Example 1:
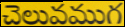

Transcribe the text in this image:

చెలువముగ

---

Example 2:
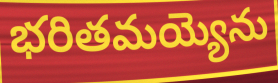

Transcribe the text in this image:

భరితమయ్యెను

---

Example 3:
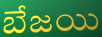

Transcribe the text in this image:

బేజయి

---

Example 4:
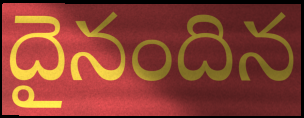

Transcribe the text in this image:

దైనందిన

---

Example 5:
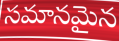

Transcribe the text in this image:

సమానమైన